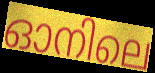
ഓനിലെ